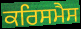
ਕਰਿਸਮੈਸ